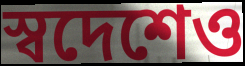
স্বদেশেও